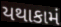
યથાકામં